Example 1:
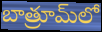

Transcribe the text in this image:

బాత్రూమ్‌లో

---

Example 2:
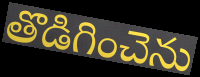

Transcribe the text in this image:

తొడిగించెను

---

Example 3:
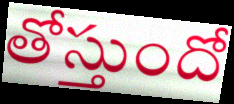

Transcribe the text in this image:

తోస్తుందో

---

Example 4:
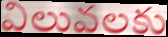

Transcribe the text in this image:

విలువలకు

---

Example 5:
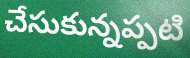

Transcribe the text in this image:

చేసుకున్నప్పటి